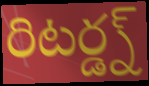
రిటర్డ్న్